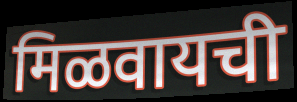
मिळवायची